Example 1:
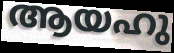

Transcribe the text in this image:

ആയഹു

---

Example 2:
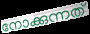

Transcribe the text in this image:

നോക്കുന്നത്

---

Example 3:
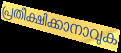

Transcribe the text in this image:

പ്രതീക്ഷിക്കാനാവുക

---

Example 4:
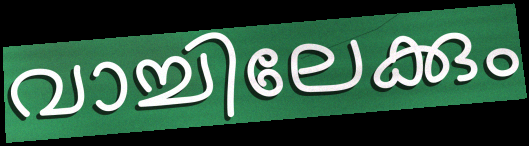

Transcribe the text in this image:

വാച്ചിലേക്കും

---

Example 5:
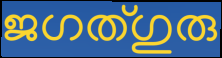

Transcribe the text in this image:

ജഗത്ഗുരു